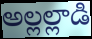
అల్లల్లాడి